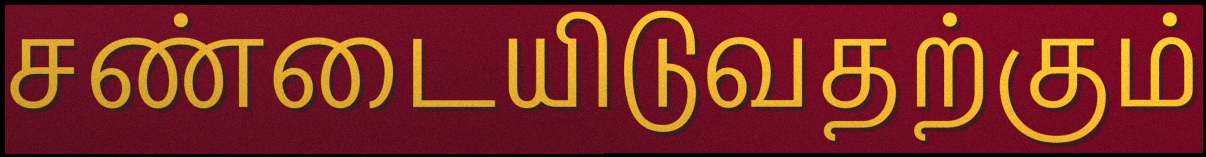
சண்டையிடுவதற்கும்